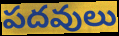
పదవులు